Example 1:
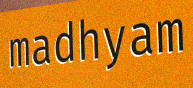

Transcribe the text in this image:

madhyam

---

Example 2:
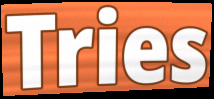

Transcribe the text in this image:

Tries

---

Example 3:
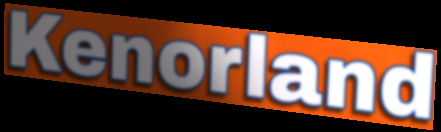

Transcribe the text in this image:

Kenorland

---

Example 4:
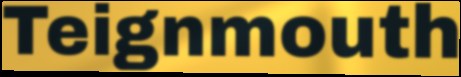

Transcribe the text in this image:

Teignmouth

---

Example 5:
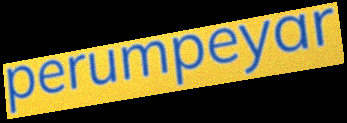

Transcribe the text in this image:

perumpeyar